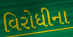
વિરોધીના